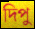
দিপু